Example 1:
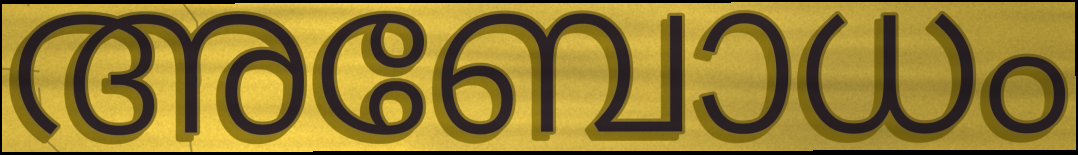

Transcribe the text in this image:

അബോധം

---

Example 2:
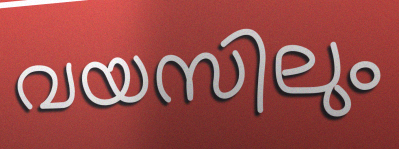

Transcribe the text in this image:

വയസിലും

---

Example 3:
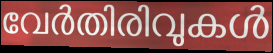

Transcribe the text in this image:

വേർതിരിവുകൾ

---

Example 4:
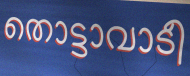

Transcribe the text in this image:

തൊട്ടാവാടീ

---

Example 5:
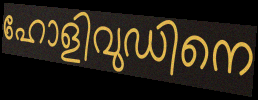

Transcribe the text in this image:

ഹോളിവുഡിനെ